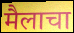
मैलाचा